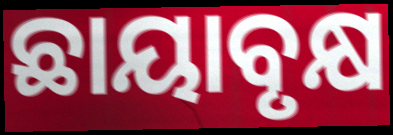
ଛାୟାବୃକ୍ଷ